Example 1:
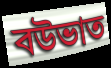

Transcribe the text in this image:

বউভাত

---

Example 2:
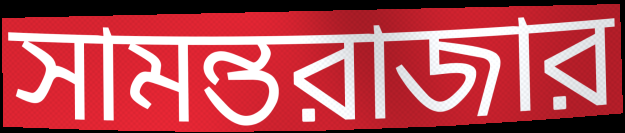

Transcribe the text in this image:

সামন্তরাজার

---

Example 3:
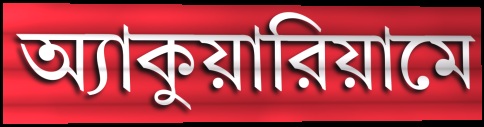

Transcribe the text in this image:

অ্যাকুয়ারিয়ামে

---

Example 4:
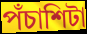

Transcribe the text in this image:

পঁচাশিটা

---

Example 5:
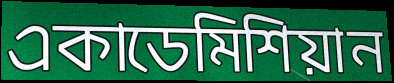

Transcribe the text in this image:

একাডেমিশিয়ান